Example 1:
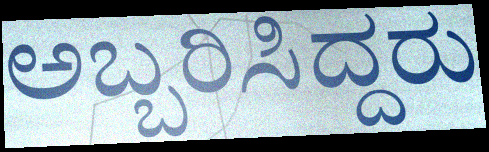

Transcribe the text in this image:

ಅಬ್ಬರಿಸಿದ್ದರು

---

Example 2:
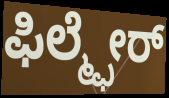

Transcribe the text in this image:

ಫಿಲ್ಮ್ಫೇರ್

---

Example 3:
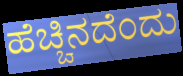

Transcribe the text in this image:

ಹೆಚ್ಚಿನದೆಂದು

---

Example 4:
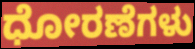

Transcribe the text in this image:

ಧೋರಣೆಗಳು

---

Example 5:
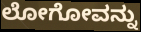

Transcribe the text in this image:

ಲೋಗೋವನ್ನು